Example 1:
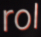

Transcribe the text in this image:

rol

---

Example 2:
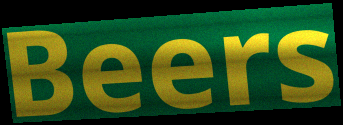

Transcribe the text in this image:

Beers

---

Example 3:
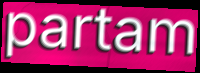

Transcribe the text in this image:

partam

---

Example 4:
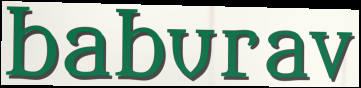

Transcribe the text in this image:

baburav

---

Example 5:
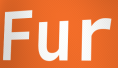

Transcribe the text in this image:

Fur